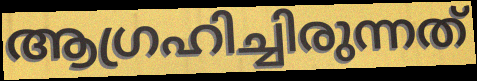
ആഗ്രഹിച്ചിരുന്നത്